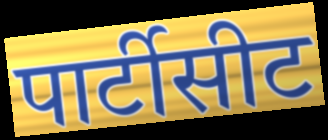
पार्टीसीट